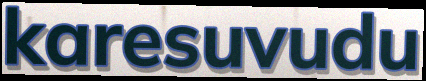
karesuvudu